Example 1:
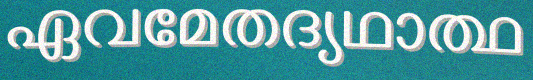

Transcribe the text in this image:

ഏവമേതദ്യഥാത്ഥ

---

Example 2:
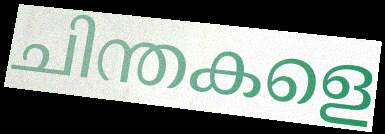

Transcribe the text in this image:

ചിന്തകളെ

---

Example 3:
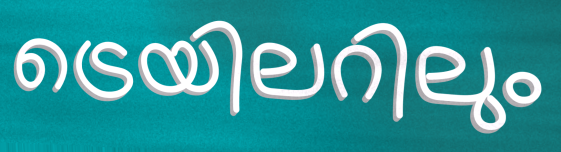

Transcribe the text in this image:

ട്രെയിലറിലും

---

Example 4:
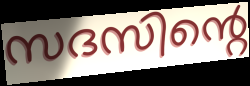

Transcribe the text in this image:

സദസിന്റെ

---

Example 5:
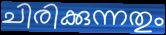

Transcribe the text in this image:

ചിരിക്കുന്നതും